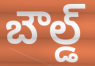
బౌల్డ్